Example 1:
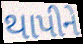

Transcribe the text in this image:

થાપીને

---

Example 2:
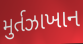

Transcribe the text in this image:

મુર્તઝાખાન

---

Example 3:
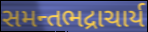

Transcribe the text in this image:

સમન્તભદ્રાચાર્ય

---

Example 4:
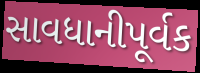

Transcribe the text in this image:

સાવધાનીપૂર્વક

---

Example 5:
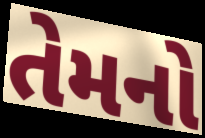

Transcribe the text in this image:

તેમનો